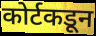
कोर्टकडून